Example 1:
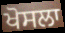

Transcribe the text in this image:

ਖੋਸਲਾ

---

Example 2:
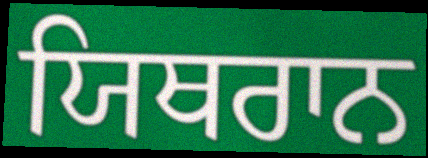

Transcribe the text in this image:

ਯਿਥਰਾਨ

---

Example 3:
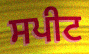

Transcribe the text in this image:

ਸਪੀਟ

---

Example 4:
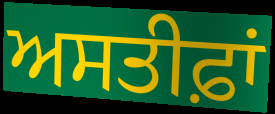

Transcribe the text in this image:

ਅਸਤੀਫ਼ਾਂ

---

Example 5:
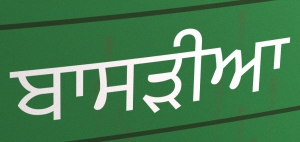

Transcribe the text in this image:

ਬਾਸੜੀਆ